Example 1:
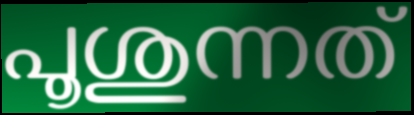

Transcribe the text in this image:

പൂശുന്നത്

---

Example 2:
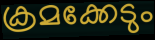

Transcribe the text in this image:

ക്രമക്കേടും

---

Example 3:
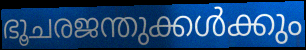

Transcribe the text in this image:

ഭൂചരജന്തുക്കൾക്കും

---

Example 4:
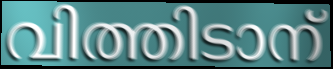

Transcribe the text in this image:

വിത്തിടാന്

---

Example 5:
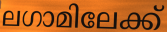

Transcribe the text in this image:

ലഗാമിലേക്ക്